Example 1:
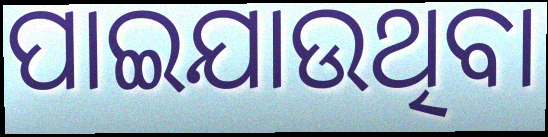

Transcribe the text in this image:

ପାଇଯାଉଥିବା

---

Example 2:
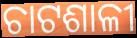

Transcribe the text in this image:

ଚାଟଶାଳୀ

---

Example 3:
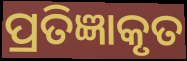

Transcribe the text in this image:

ପ୍ରତିଜ୍ଞାକୃତ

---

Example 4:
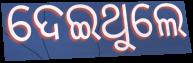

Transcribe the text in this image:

ଦେଇଥୁଲେ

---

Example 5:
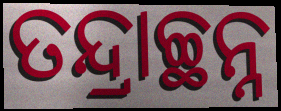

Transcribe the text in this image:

ତନ୍ଦ୍ରାଚ୍ଛନ୍ନ